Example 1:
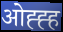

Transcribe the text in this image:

ओह्ह्ह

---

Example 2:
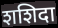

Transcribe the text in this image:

शशिदा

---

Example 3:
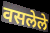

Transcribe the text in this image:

वसलेले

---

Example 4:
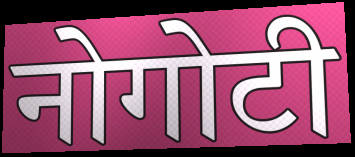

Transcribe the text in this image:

नोगोटी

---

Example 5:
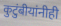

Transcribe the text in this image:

कुटुंबीयांनीही